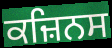
ਕਜ਼ਿਨਸ